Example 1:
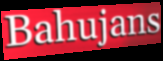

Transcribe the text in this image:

Bahujans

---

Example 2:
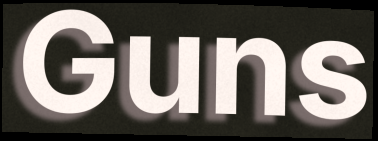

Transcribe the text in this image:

Guns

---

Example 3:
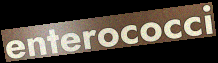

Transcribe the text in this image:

enterococci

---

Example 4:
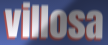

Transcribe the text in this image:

villosa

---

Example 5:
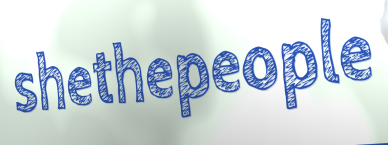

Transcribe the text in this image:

shethepeople